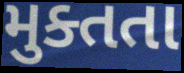
મુક્તતા